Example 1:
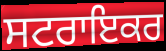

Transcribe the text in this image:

ਸਟਰਾਇਕਰ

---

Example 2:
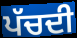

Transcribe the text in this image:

ਪੱਚਦੀ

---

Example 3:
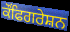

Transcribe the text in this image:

ਕੌਂਫਿਗਰੇਸ਼ਨ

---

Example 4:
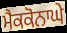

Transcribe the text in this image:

ਮੈਕਕੋਨਾਘੇ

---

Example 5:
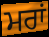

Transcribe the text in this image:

ਮਰਾਂ